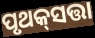
ପୃଥକ୍‌ସତ୍ତା